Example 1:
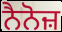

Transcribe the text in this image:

ਨੈਨੋਜ਼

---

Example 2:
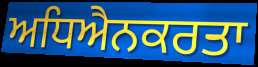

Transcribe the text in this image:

ਅਧਿਐਨਕਰਤਾ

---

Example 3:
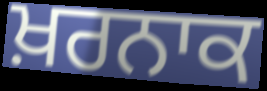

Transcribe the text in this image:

ਖ਼ਰਨਾਕ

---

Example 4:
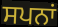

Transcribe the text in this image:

ਸਪਨਾਂ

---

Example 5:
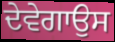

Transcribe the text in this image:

ਦੇਵੇਗਾਉਸ